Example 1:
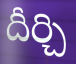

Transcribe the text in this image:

దీర్చి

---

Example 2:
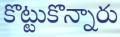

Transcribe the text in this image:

కొట్టుకొన్నారు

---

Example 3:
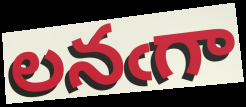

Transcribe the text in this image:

లనఁగా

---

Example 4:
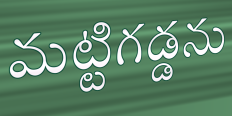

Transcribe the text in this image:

మట్టిగడ్డను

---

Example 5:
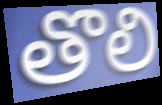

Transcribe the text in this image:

తొలి